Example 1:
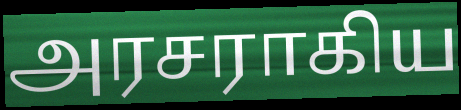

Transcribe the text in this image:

அரசராகிய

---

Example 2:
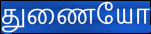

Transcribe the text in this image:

துணையோ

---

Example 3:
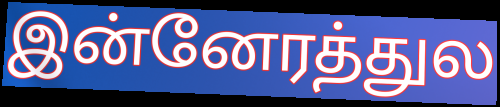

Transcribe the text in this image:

இன்னேரத்துல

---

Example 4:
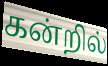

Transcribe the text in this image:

கன்றில்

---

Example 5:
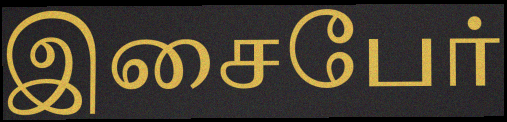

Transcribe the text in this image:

இசைபேர்